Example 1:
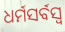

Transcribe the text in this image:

ଧର୍ମସର୍ବସ୍ୱ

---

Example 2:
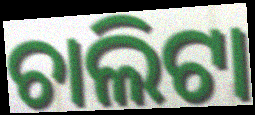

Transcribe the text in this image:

ଚାଲିଟା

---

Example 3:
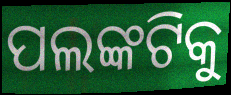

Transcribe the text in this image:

ପଲଙ୍କଟିକୁ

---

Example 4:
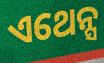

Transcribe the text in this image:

ଏଥେନ୍ସ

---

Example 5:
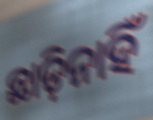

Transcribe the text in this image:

ଛାଡ଼ିନାହିଁ